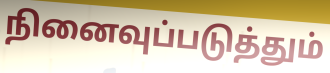
நினைவுப்படுத்தும்